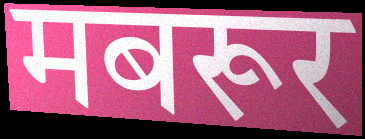
मबरूर